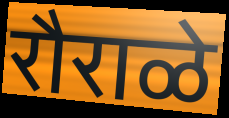
रौराळे